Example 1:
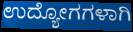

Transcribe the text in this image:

ಉದ್ಯೋಗಗಳಾಗಿ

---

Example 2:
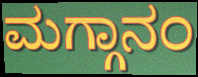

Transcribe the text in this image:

ಮಗ್ಗಾನಂ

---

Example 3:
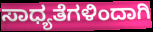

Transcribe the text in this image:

ಸಾಧ್ಯತೆಗಳಿಂದಾಗಿ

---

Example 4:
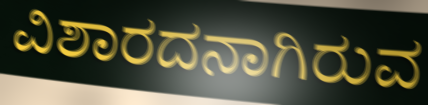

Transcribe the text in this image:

ವಿಶಾರದನಾಗಿರುವ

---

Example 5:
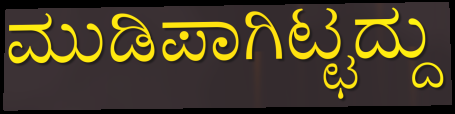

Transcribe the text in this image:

ಮುಡಿಪಾಗಿಟ್ಟದ್ದು